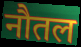
नौतल